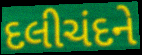
દલીચંદને